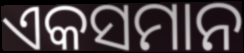
ଏକସମାନ